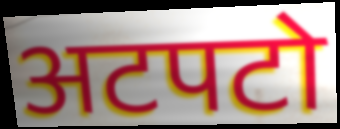
अटपटो